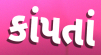
કાંપતાં